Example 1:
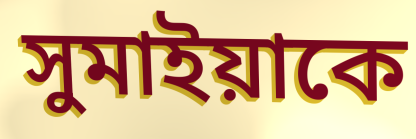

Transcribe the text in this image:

সুমাইয়াকে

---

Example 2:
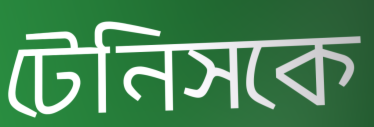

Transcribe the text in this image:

টেনিসকে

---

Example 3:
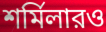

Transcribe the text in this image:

শর্মিলারও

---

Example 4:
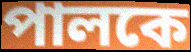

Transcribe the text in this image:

পালকে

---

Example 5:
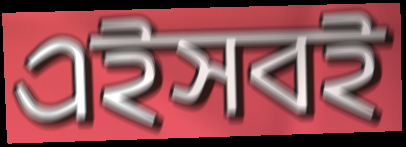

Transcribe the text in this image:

এইসবই